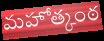
మహోత్కంఠ